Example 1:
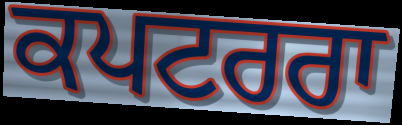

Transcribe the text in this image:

ਕਪਟਰਰਾ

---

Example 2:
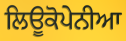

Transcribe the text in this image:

ਲਿਊਕੋਪੇਨੀਆ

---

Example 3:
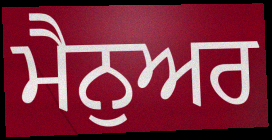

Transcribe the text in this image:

ਮੈਨੁਅਰ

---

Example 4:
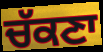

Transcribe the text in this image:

ਚੱਕਣਾ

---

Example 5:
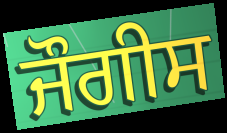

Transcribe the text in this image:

ਜੌਗੀਸ